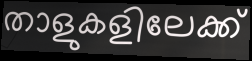
താളുകളിലേക്ക്